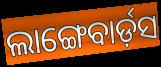
ଲାଙ୍ଗେବାର୍ଡ଼ସ